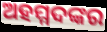
ଅହମ୍ମଦଙ୍କର